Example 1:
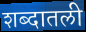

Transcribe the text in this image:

शब्दातली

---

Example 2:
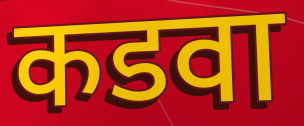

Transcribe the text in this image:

कडवा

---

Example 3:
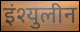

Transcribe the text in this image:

इंश्युलीन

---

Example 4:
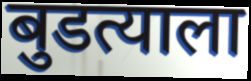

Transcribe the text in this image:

बुडत्याला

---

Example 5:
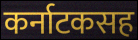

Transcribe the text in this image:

कर्नाटकसह